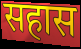
सहास